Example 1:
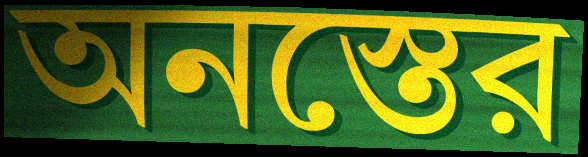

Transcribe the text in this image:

অনস্তের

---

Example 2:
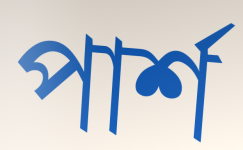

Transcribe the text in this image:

পার্শ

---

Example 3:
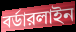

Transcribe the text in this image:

বর্ডারলাইন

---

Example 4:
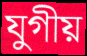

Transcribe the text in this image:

যুগীয়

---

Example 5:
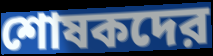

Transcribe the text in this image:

শোষকদের